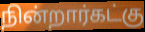
நின்றார்கட்கு